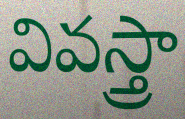
వివస్త్రా